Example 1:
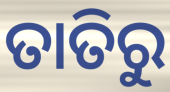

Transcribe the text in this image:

ତାତିରୁ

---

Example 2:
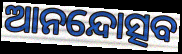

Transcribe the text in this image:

ଆନନ୍ଦୋତ୍ସବ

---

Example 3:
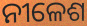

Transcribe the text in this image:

ନୀଳେଶ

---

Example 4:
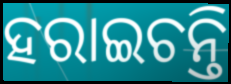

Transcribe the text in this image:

ହରାଇଚନ୍ତି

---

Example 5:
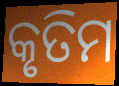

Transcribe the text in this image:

କୃତିମ